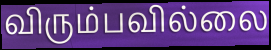
விரும்பவில்லை